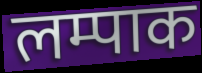
लम्पाक